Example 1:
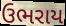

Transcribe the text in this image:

ઉભરાય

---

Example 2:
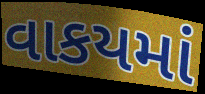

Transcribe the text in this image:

વાકયમાં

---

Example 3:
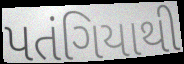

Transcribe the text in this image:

પતંગિયાથી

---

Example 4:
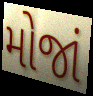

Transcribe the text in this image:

મોજાં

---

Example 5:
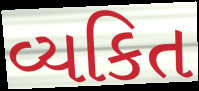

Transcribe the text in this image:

વ્યકિત